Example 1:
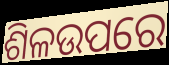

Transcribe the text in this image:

ଶିଳଉପରେ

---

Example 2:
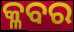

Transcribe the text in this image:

କ୍ଳବର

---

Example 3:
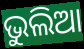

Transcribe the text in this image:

ଭୁଲିଆ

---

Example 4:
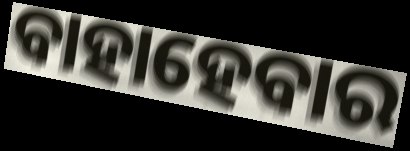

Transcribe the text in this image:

ବାହାହେବାର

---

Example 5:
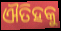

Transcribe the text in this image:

ଐତିହକୁ